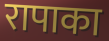
रापाका